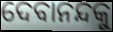
ଦେବାନନ୍ଦକୁ